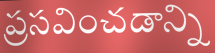
ప్రసవించడాన్ని